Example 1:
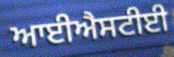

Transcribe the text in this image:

ਆਈਐਸਟੀਈ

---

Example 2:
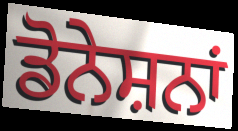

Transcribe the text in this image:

ਡੋਨੇਸ਼ਨਾਂ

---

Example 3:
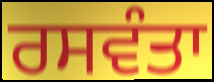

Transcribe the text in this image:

ਰਸਵੰਤਾ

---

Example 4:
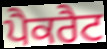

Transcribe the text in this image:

ਪੈਕਰੈਟ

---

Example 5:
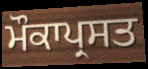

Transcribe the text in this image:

ਮੌਕਾਪ੍ਰਸਤ